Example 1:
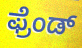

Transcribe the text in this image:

ಫ್ರೆಂಡ್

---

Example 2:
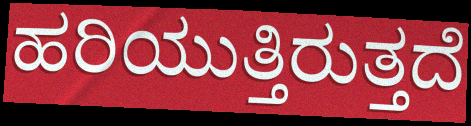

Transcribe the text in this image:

ಹರಿಯುತ್ತಿರುತ್ತದೆ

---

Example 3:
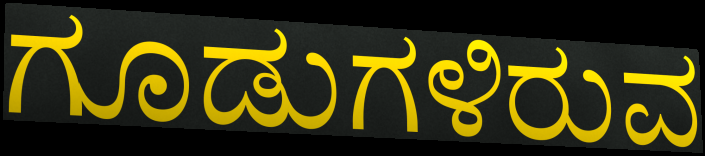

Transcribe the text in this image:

ಗೂಡುಗಳಿರುವ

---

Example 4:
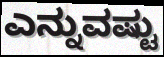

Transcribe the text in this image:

ಎನ್ನುವಷ್ಟು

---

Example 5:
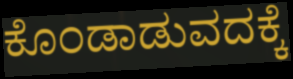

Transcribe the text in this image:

ಕೊಂಡಾಡುವದಕ್ಕೆ